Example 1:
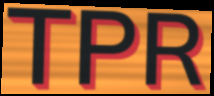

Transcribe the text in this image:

TPR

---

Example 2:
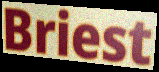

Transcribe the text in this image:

Briest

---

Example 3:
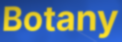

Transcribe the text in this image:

Botany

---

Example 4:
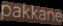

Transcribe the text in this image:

pakkane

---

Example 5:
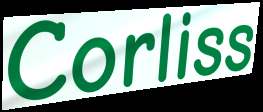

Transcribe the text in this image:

Corliss